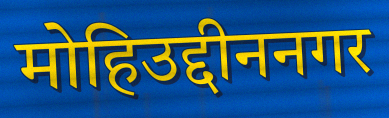
मोहिउद्दीननगर